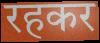
रहकर